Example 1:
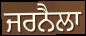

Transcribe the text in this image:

ਜਰਨੈਲਾ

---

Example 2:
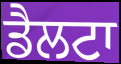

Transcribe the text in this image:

ਡੈਲਟਾ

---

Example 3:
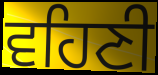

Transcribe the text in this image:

ਵਹਿਣੀ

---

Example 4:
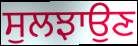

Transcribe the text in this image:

ਸੁਲਝਾਉਣ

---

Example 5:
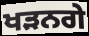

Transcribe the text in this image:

ਖੜਨਗੇ